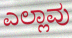
ಎಲ್ಲಾವು